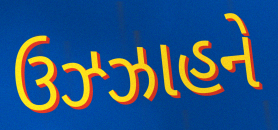
ઉઝ્ઝાહને